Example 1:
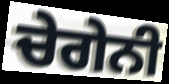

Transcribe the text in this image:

ਚੇਗੇਨੀ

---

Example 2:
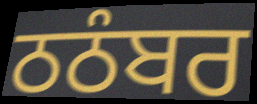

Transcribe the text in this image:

ਠਠੰਬਰ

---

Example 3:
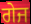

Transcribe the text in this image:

ਗੇਜ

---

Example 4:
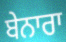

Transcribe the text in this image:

ਬੇਨਾਰਾ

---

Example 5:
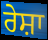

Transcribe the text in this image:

ਰੇਸ਼ਾ